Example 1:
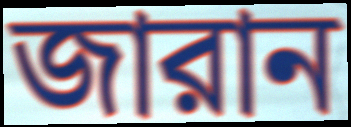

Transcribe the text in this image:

জারান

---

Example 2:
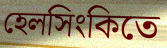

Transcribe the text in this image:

হেলসিংকিতে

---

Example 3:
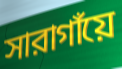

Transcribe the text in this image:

সারাগাঁয়ে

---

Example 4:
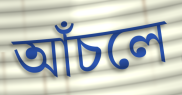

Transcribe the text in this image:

আঁচলে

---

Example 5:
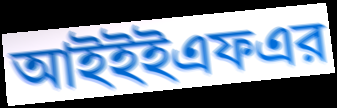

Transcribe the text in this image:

আইইইএফএর